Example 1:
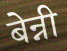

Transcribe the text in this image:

बेन्नी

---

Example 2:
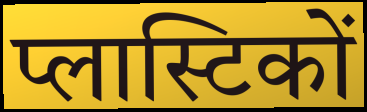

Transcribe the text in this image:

प्लास्टिकों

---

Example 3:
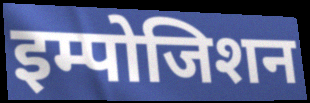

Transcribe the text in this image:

इम्पोजिशन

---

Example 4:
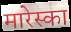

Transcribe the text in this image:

मारेस्का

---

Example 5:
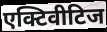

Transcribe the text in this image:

एक्टिवीटिज